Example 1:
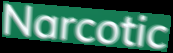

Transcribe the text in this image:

Narcotic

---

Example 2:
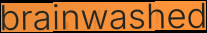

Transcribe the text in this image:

brainwashed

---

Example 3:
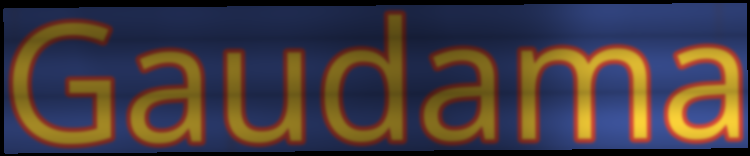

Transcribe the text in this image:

Gaudama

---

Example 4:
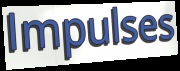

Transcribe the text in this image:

Impulses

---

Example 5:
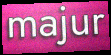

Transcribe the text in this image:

majur